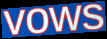
vows